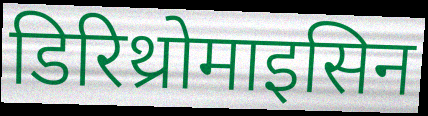
डिरिथ्रोमाइसिन